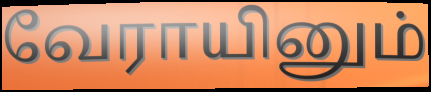
வேராயினும்